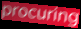
procuring